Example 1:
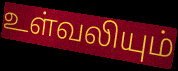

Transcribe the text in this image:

உள்வலியும்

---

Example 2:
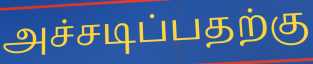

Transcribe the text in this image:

அச்சடிப்பதற்கு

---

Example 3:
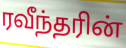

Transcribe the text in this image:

ரவீந்தரின்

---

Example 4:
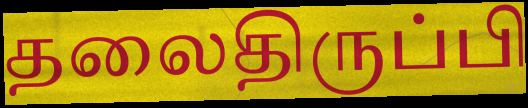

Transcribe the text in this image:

தலைதிருப்பி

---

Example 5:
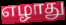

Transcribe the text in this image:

எழாது